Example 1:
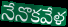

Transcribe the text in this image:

నేనొకవేళ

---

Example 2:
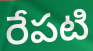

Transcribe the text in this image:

రేపటి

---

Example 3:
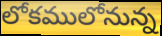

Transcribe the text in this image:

లోకములోనున్న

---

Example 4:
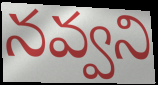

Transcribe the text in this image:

నవ్వని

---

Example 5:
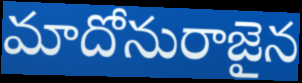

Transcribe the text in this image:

మాదోనురాజైన